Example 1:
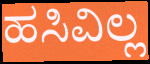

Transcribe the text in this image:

ಹಸಿವಿಲ್ಲ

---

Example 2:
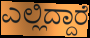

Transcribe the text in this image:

ಎಲ್ಲಿದ್ದಾರೆ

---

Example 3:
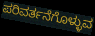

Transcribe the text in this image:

ಪರಿವರ್ತನೆಗೊಳ್ಳುವ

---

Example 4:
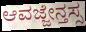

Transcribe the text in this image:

ಆವಜ್ಜೇನ್ತಸ್ಸ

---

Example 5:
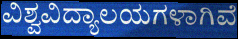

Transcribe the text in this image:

ವಿಶ್ವವಿದ್ಯಾಲಯಗಳಾಗಿವೆ